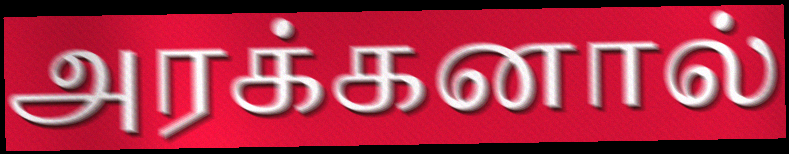
அரக்கனால்